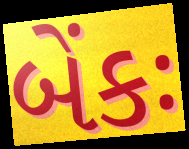
બેંકઃ